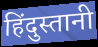
हिंदुस्तानी